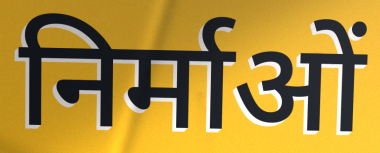
निर्माओं